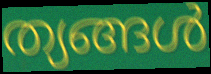
ത്യങ്ങൾ